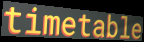
timetable